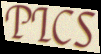
PICS